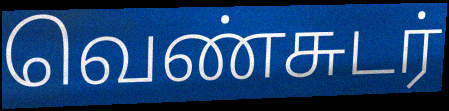
வெண்சுடர்